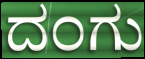
ದಂಗು